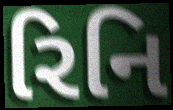
રિનિ